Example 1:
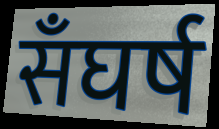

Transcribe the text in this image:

सँघर्ष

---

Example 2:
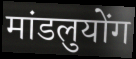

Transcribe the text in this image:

मांडलुयोंग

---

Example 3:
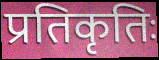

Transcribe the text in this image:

प्रतिकृतिः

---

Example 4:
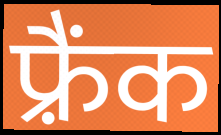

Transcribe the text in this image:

फ़्रैंक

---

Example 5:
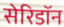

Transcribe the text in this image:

सेरिडॉन